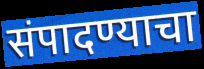
संपादण्याचा